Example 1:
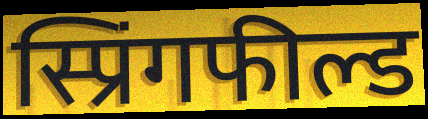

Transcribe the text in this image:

स्प्रिंगफील्ड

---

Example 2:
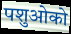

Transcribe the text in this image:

पशुओको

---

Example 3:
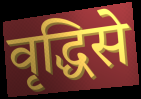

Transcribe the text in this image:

वृद्धिसे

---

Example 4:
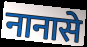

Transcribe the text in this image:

नानासे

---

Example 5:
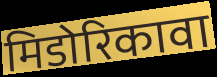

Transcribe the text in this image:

मिडोरिकावा